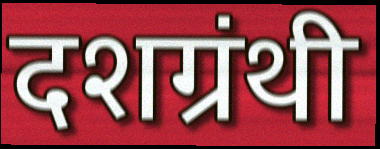
दशग्रंथी